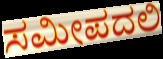
ಸಮೀಪದಲಿ